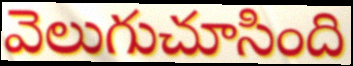
వెలుగుచూసింది